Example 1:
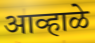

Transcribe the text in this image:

आव्हाळे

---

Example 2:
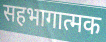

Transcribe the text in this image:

सहभागात्मक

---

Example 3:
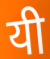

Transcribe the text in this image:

यी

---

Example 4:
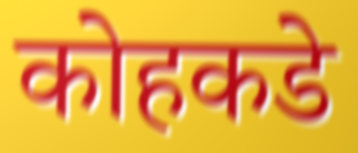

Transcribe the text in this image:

कोहकडे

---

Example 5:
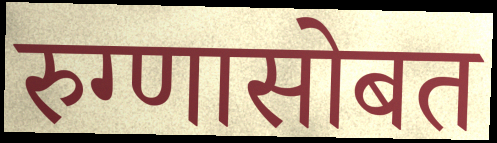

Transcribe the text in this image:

रुग्णासोबत